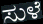
ಸುಳೆ